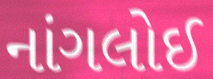
નાંગલોઈ